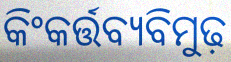
କିଂକର୍ତ୍ତବ୍ୟବିମୁଢ଼